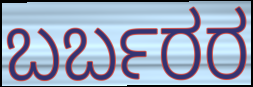
ಬರ್ಬರರ